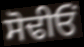
ਸੋਢੀਓਂ